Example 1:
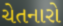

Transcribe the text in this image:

ચેતનારો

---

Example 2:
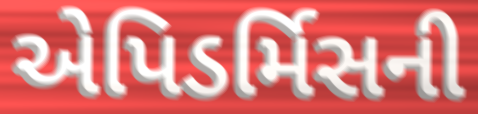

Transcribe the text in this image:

એપિડર્મિસની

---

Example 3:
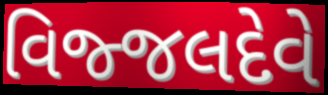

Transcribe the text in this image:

વિજ્જલદેવે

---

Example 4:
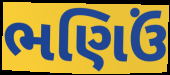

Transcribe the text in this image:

ભણિઉં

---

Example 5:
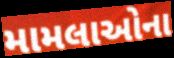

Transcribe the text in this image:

મામલાઓના